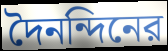
দৈনন্দিনের